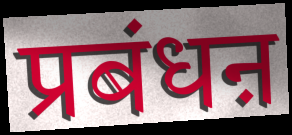
प्रबंधऩ